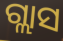
ଗ୍ଲାସ